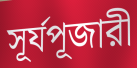
সূর্যপূজারী